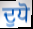
ਦੁਧੋ